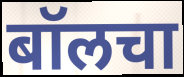
बॉलचा